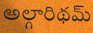
అల్గారిథమ్